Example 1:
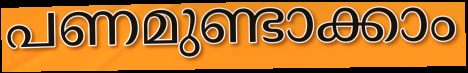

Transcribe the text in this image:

പണമുണ്ടാക്കാം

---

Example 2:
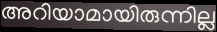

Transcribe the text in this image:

അറിയാമായിരുന്നില്ല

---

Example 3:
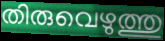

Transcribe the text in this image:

തിരുവെഴുത്തു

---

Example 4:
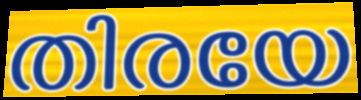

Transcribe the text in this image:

തിരയേ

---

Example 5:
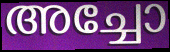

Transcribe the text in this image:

അച്ചോ